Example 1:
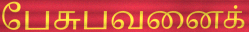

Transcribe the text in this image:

பேசுபவனைக்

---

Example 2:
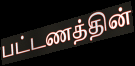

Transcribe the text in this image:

பட்டணத்தின்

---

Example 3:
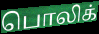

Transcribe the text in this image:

பொலிக்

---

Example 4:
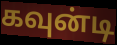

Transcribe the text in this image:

கவுன்டி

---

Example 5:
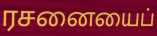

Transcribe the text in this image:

ரசனையைப்